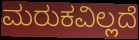
ಮರುಕವಿಲ್ಲದೆ